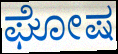
ಘೋಷ